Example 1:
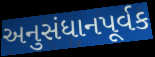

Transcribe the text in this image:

અનુસંધાનપૂર્વક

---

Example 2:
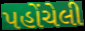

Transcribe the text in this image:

પહોંચેલી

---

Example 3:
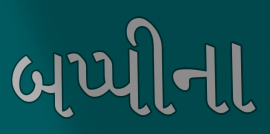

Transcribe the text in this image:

બપ્પીના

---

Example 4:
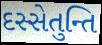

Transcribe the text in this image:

દસ્સેતુન્તિ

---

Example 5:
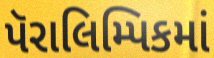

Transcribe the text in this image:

પૅરાલિમ્પિકમાં